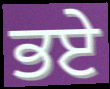
ਭਏ